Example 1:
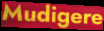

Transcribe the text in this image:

Mudigere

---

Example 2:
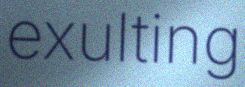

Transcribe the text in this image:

exulting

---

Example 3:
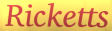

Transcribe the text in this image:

Ricketts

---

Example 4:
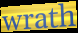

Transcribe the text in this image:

wrath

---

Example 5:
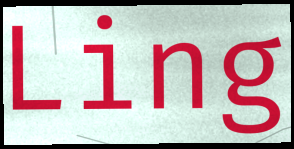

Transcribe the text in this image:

Ling